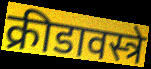
क्रीडावस्त्रे